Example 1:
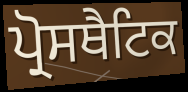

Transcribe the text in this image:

ਪ੍ਰੋਸਥੈਟਿਕ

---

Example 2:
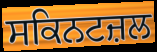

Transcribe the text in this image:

ਸਕਿਨਟਜ਼ਲ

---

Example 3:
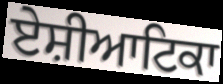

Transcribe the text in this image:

ਏਸ਼ੀਆਟਿਕਾ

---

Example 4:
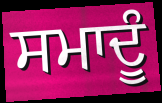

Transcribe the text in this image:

ਸਮਾਦੂੰ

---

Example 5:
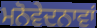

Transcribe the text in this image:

ਮਨੋਵੇਦਨਾਵਾਂ